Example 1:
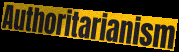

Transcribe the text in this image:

Authoritarianism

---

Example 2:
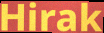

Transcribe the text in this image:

Hirak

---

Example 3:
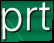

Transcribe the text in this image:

prt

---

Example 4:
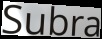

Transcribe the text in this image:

Subra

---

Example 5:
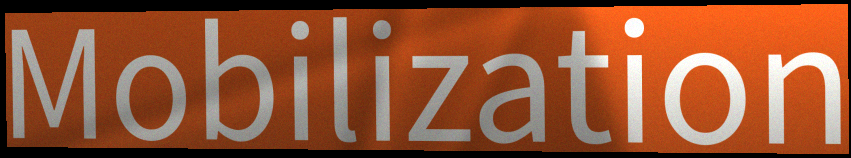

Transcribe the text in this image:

Mobilization